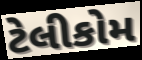
ટેલીકોમ